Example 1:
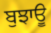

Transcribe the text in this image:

ਬੁਝਾਊ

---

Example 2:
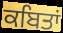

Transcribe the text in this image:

ਕਬਿਤਾਂ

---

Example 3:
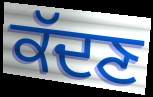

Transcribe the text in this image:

ਕੱਦਣ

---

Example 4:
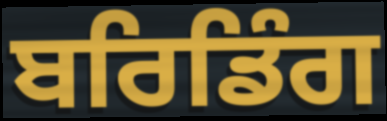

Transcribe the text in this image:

ਬਰਿਡਿੰਗ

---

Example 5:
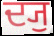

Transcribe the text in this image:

ਦ੍ਯੁ